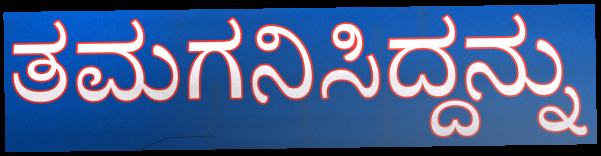
ತಮಗನಿಸಿದ್ದನ್ನು